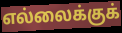
எல்லைக்குக்